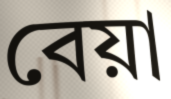
বেয়া